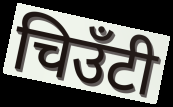
चिउँटी